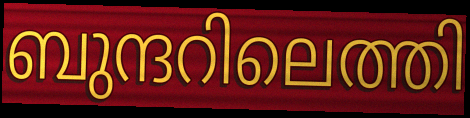
ബുന്ദറിലെത്തി